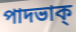
পাদভাক্